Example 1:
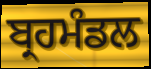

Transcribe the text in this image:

ਬ੍ਰਹਮੰਡਲ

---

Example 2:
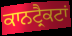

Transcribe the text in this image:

ਕਾਨਟ੍ਰੈਕਟਾਂ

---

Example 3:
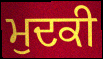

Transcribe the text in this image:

ਮੁਦਕੀ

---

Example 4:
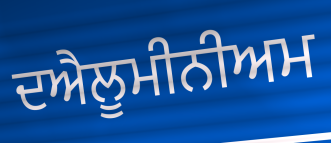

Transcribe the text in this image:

ਦਐਲੂਮੀਨੀਅਮ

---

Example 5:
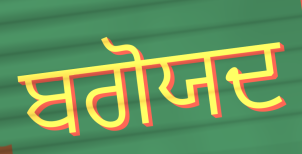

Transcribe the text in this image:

ਬਗੋਯਦ